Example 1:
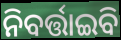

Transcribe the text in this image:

ନିବର୍ତ୍ତାଇବି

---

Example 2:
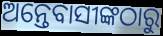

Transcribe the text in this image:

ଅନ୍ତେବାସୀଙ୍କଠାରୁ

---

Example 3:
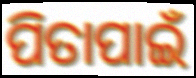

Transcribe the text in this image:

ପିତାପାଇଁ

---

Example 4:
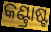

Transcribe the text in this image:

କଣ୍ଟ୍ରାଷ୍ଟ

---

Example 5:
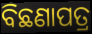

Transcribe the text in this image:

ବିଛଣାପତ୍ର